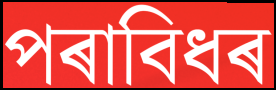
পৰাবিধৰ